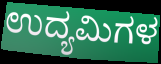
ಉದ್ಯಮಿಗಳ